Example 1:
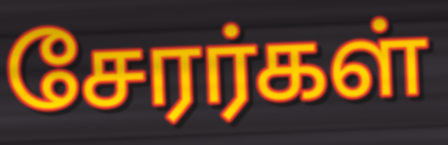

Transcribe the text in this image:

சேரர்கள்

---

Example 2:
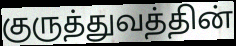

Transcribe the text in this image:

குருத்துவத்தின்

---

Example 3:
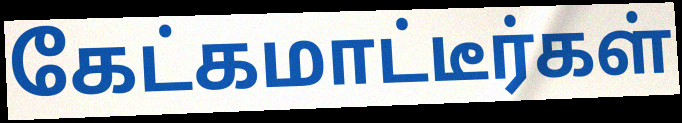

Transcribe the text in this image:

கேட்கமாட்டீர்கள்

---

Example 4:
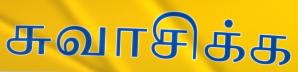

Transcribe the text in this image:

சுவாசிக்க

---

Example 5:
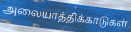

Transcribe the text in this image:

அலையாத்திக்காடுகள்